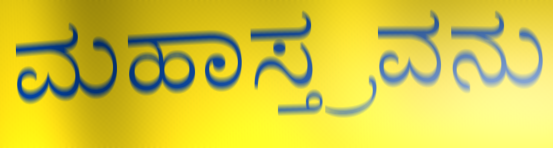
ಮಹಾಸ್ತ್ರವನು